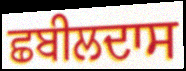
ਛਬੀਲਦਾਸ